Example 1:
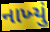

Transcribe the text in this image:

નાખ્‍યું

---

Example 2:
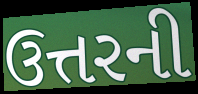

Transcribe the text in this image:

ઉત્તરની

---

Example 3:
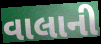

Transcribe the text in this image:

વાલાની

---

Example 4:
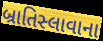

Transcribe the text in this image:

બ્રાતિસ્લાવાના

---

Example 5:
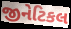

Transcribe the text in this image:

જીનેટિકલ